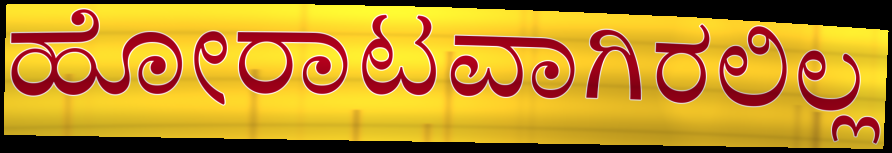
ಹೋರಾಟವಾಗಿರಲಿಲ್ಲ